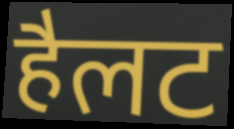
हैलट